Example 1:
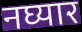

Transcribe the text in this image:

नघ्यार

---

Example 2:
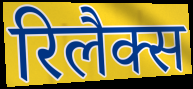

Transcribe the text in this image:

रिलैक्स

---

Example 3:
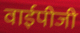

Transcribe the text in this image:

वाईपीजी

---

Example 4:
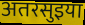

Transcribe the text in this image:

अतरसुइया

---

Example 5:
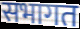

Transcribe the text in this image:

सभागत